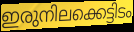
ഇരുനിലക്കെട്ടിടം